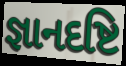
જ્ઞાનદષ્ટિ